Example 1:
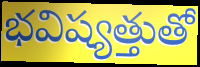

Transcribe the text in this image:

భవిష్యత్తుతో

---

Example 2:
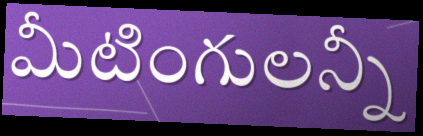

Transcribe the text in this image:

మీటింగులన్నీ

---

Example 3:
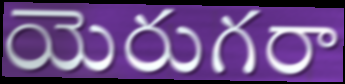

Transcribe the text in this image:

యెరుగరా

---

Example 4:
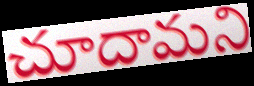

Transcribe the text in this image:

చూదామని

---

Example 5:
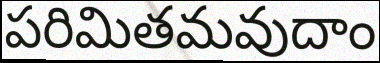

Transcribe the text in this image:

పరిమితమవుదాం